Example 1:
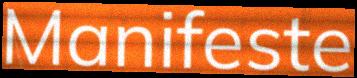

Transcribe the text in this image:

Manifeste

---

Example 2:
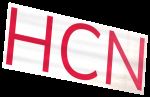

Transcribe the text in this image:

HCN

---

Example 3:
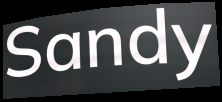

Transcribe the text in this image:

Sandy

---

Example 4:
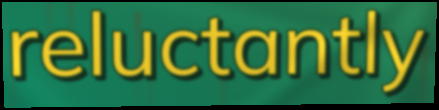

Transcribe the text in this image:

reluctantly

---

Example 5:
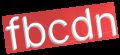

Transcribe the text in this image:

fbcdn